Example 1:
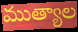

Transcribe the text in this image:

ముత్యాల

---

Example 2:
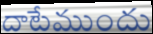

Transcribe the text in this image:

దాటేముందు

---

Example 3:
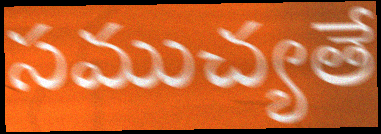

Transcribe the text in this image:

సముచ్యతే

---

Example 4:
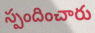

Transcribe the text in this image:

స్పందించారు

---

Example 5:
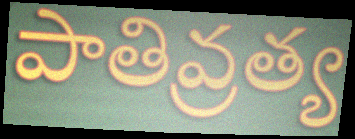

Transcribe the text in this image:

పాతివ్రత్య